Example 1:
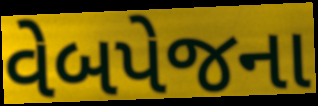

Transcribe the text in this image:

વેબપેજના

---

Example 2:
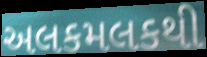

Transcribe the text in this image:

અલકમલકથી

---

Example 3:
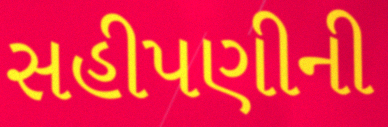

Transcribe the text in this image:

સહીપણીની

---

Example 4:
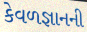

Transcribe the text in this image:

કેવળજ્ઞાનની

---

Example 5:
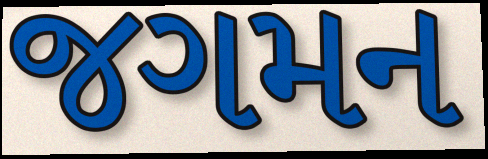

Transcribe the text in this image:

જગમન